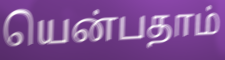
யென்பதாம்